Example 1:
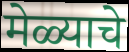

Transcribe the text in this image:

मेळ्याचे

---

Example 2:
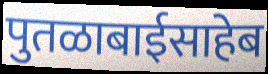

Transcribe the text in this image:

पुतळाबाईसाहेब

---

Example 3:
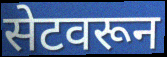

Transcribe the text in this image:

सेटवरून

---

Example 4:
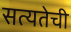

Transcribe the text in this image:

सत्यतेची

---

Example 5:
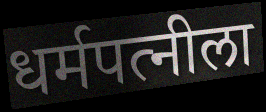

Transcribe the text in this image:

धर्मपत्नीला